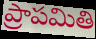
ప్రాపమితి